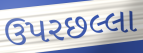
ઉપરછલ્લા